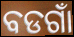
ବଡଗାଁ